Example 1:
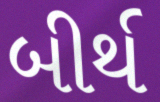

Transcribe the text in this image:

બીર્થ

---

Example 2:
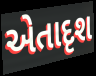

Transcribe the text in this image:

એતાદૃશ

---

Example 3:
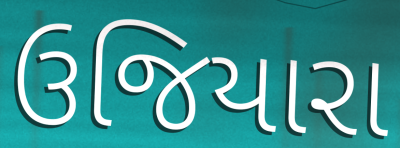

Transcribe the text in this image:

ઉજિયારા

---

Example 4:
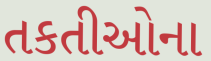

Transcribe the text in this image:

તકતીઓના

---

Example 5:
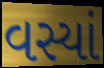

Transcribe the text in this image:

વસ્યાં